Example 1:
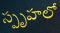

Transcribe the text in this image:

స్పృహలో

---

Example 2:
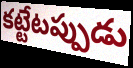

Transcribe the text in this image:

కట్టేటప్పుడు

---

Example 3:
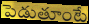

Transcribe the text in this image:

పెడుతూంటే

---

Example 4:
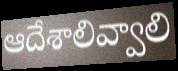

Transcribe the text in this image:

ఆదేశాలివ్వాలి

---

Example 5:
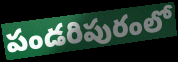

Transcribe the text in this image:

పండరిపురంలో